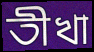
তীখা